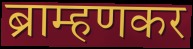
ब्राम्हणकर